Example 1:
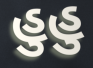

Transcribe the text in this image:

હુહુ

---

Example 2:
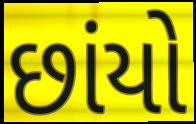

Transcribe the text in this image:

છાંયો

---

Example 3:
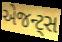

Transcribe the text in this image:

એજન્ટ્સ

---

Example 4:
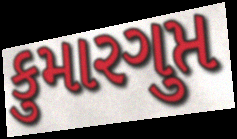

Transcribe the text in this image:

કુમારગુપ્ત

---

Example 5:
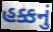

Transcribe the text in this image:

હક્કનું